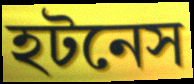
হটনেস